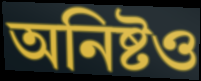
অনিষ্টও